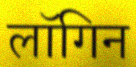
लॉगिन